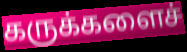
கருக்களைச்